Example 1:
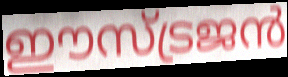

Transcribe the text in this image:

ഈസ്ട്രജൻ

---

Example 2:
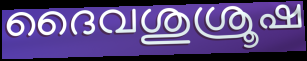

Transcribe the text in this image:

ദൈവശുശ്രൂഷ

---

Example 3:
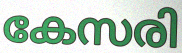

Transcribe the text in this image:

കേസരി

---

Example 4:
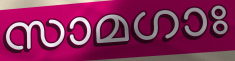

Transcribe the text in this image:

സാമഗാഃ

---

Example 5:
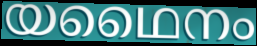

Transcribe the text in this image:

യഥൈനം